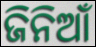
ଜିନିଆଁ